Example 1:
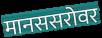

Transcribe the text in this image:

मानससरोवर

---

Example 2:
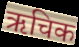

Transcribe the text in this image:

ऋचिक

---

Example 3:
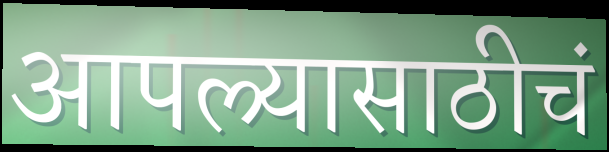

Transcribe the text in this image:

आपल्यासाठीचं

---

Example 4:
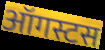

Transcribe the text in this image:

ऑगस्टस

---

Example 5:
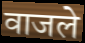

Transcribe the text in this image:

वाजले